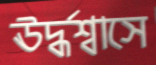
ঊর্দ্ধশ্বাসে